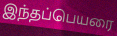
இந்தப்பெயரை